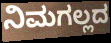
ನಿಮಗಲ್ಲದ